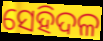
ସେହିଦଳ